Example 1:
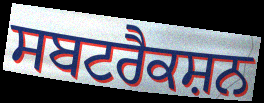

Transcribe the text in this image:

ਸਬਟਰੈਕਸ਼ਨ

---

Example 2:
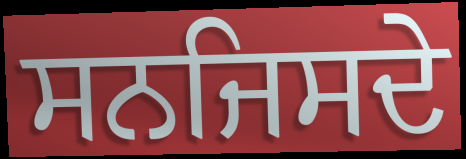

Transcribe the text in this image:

ਸਨਜਿਸਦੇ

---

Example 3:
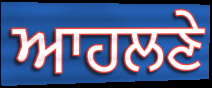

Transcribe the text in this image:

ਆਹਲਣੇ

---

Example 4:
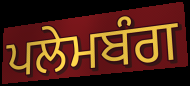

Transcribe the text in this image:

ਪਲੇਮਬੰਗ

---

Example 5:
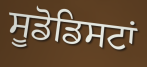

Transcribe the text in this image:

ਸੂਡੋਡਿਸਟਾਂ